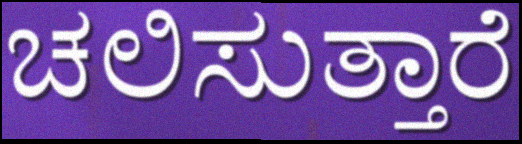
ಚಲಿಸುತ್ತಾರೆ